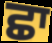
ਛਾ